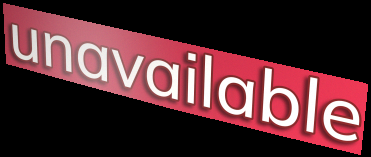
unavailable